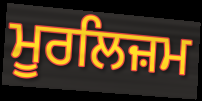
ਮੂਰਲਿਜ਼ਮ